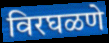
विरघळणे